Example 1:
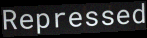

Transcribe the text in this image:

Repressed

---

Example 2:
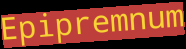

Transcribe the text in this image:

Epipremnum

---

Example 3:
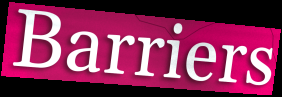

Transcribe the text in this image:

Barriers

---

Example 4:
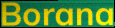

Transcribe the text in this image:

Borana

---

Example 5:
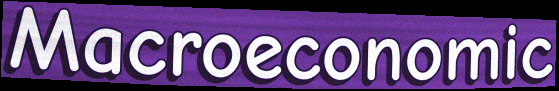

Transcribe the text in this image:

Macroeconomic